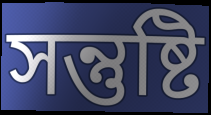
সন্তুষ্টি